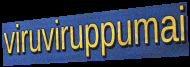
viruviruppumai